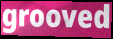
grooved